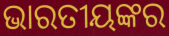
ଭାରତୀୟଙ୍କର